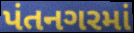
પંતનગરમાં